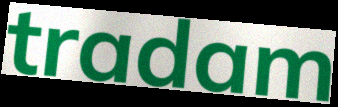
tradam